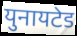
युनायटेड